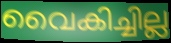
വൈകിച്ചില്ല